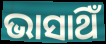
ଭାସାଥିଁ